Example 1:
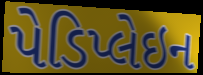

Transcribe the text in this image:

પેડિપ્લેઇન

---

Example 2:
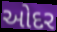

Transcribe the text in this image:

ઓદર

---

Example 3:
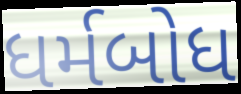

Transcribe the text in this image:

ધર્મબોધ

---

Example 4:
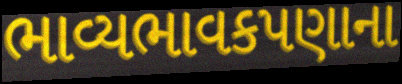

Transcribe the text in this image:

ભાવ્યભાવકપણાના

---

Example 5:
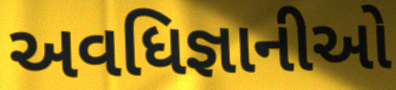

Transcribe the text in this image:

અવધિજ્ઞાનીઓ